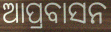
ଆପ୍ରବାସନ